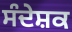
ਸੰਦੇਸ਼ਕ